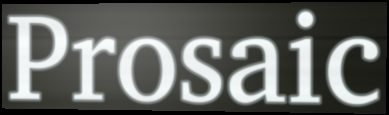
Prosaic